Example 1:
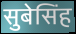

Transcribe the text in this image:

सुबेसिंह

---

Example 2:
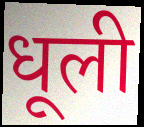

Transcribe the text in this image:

धूली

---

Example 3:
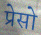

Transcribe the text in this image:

प्रेसो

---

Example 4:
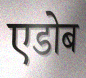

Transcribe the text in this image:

एडोब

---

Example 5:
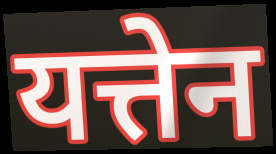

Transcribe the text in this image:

यत्तेन